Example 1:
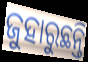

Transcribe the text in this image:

ଜୁହାରୁଛନ୍ତି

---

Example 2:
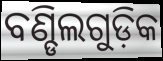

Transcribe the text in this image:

ବଣ୍ଡିଲଗୁଡ଼ିକ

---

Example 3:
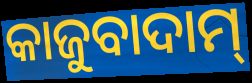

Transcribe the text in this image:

କାଜୁବାଦାମ୍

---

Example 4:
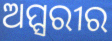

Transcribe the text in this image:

ଅପ୍ସରୀର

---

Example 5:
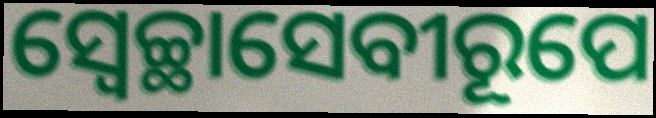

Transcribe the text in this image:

ସ୍ଵେଚ୍ଛାସେବୀରୂପେ